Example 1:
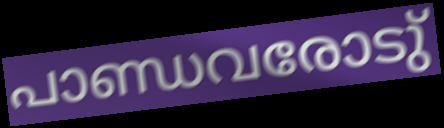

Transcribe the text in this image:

പാണ്ഡവരോടു്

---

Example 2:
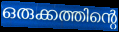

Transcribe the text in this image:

ഒരുക്കത്തിന്റെ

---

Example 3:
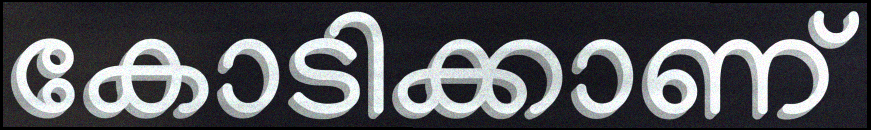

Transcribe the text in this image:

കോടിക്കാണ്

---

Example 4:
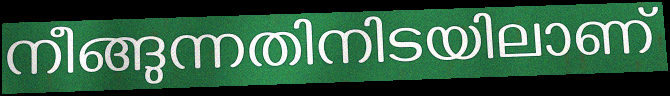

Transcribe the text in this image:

നീങ്ങുന്നതിനിടയിലാണ്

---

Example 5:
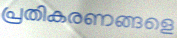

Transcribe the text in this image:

പ്രതികരണങ്ങളെ